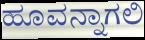
ಹೂವನ್ನಾಗಲಿ